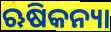
ଋଷିକନ୍ୟା